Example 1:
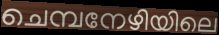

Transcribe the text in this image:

ചെമ്പനേഴിയിലെ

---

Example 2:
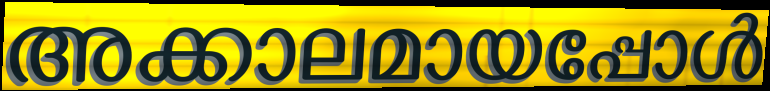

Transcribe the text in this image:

അക്കാലമായപ്പോൾ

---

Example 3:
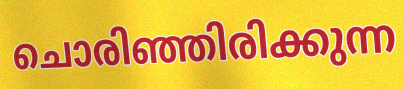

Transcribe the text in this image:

ചൊരിഞ്ഞിരിക്കുന്ന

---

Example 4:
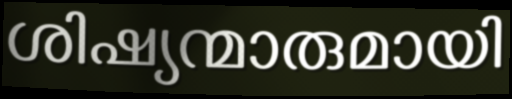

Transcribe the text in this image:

ശിഷ്യന്മാരുമായി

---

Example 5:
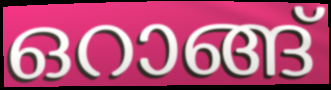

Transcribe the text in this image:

ഒറാങ്ങ്